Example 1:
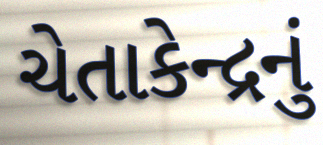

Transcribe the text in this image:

ચેતાકેન્દ્રનું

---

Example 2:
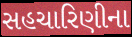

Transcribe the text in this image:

સહચારિણીના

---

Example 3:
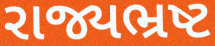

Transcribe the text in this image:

રાજ્યભ્રષ્ટ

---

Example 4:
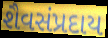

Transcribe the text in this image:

શૈવસંપ્રદાય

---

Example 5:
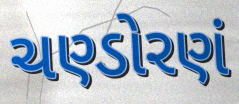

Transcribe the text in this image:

ચણ્ડોરણં